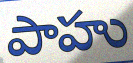
పాహు